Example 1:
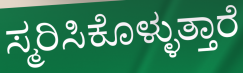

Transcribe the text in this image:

ಸ್ಮರಿಸಿಕೊಳ್ಳುತ್ತಾರೆ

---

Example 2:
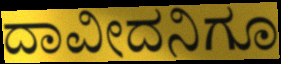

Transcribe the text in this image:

ದಾವೀದನಿಗೂ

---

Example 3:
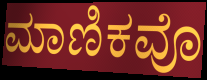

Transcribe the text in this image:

ಮಾಣಿಕವೊ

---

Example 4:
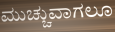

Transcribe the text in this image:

ಮುಚ್ಚುವಾಗಲೂ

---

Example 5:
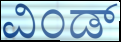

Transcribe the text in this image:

ವಿಂಡ್